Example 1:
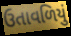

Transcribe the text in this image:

ઉતાવળિયું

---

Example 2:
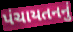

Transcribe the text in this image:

પંચાયતનનું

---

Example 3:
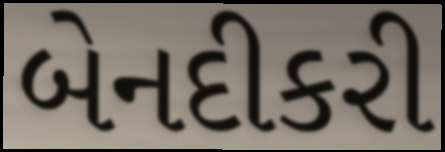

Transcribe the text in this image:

બેનદીકરી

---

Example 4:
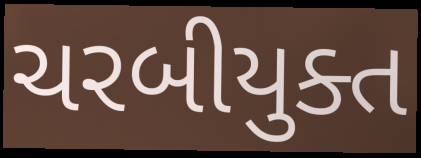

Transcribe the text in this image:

ચરબીયુક્ત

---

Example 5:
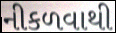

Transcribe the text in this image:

નીકળવાથી